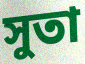
সুতা